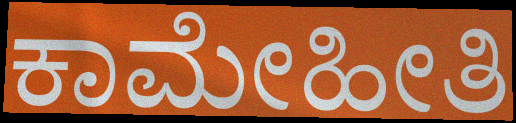
ಕಾಮೇಹೀತಿ